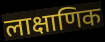
लाक्षाणिक